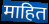
माहित